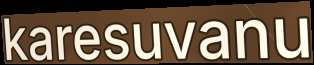
karesuvanu